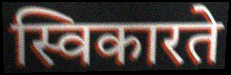
स्विकारते